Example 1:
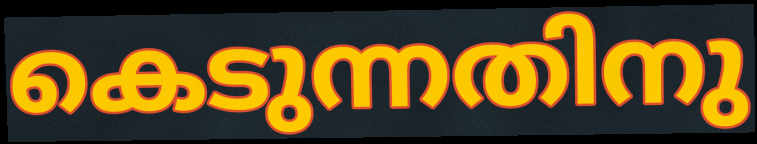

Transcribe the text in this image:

കെടുന്നതിനു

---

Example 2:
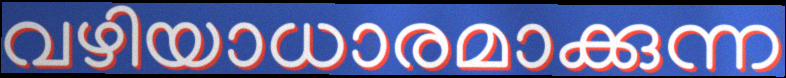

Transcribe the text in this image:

വഴിയാധാരമാക്കുന്ന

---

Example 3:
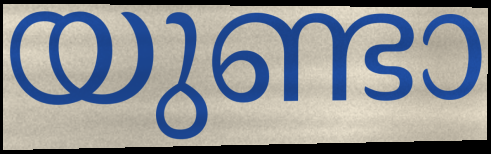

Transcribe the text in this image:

യുണ്ടാ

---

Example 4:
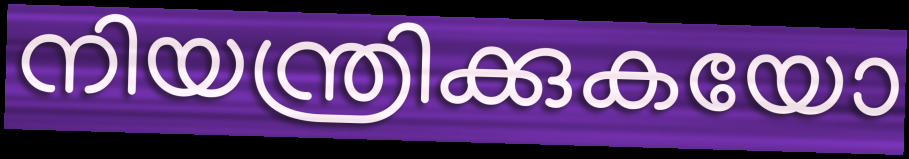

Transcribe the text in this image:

നിയന്ത്രിക്കുകയോ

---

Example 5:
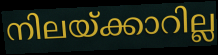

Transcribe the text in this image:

നിലയ്ക്കാറില്ല